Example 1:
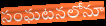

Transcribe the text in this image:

సంఘటనలోనూ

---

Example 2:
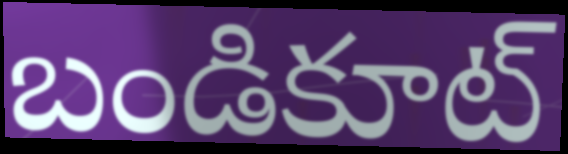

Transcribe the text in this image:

బండికూట్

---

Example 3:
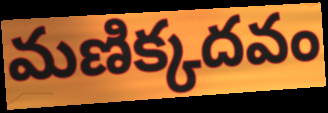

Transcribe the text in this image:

మణిక్కదవం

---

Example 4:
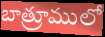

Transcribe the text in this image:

బాత్రూములో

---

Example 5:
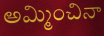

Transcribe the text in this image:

అమ్మించినా